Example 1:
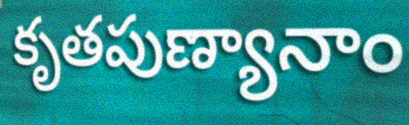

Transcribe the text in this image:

కృతపుణ్యానాం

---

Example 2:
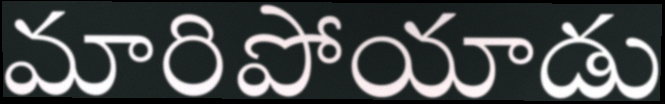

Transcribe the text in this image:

మారిపోయాడు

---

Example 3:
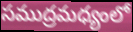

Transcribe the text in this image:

సముద్రమధ్యంలో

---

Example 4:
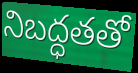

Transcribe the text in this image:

నిబద్ధతతో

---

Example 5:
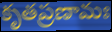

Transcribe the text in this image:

కృతప్రణామః